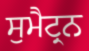
ਸੁਮੈਟ੍ਰਨ